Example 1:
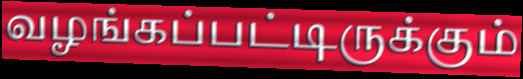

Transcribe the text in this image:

வழங்கப்பட்டிருக்கும்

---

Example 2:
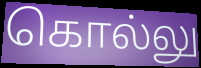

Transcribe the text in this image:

கொல்லு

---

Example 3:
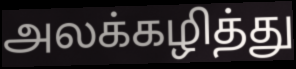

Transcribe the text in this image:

அலக்கழித்து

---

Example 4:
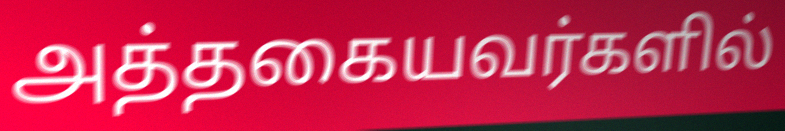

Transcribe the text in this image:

அத்தகையவர்களில்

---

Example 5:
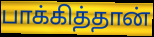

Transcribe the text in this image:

பாக்கித்தான்